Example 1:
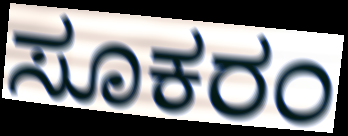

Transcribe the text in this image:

ಸೂಕರಂ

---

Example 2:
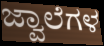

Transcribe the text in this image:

ಜ್ವಾಲೆಗಳ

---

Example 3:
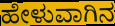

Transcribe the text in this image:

ಹೇಳುವಾಗಿನ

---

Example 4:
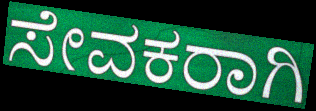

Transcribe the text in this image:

ಸೇವಕರಾಗಿ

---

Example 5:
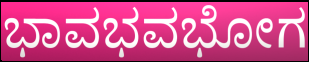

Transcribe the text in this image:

ಭಾವಭವಭೋಗ